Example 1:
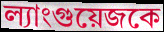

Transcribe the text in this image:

ল্যাংগুয়েজকে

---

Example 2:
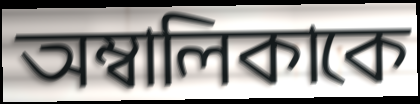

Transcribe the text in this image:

অম্বালিকাকে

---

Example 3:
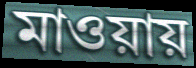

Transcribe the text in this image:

মাওয়ায়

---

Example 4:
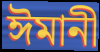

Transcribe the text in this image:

ঈমানী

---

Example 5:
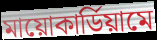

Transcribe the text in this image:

মায়োকার্ডিয়ামে